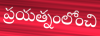
ప్రయత్నంలోంచి